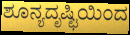
ಶೂನ್ಯದೃಷ್ಟಿಯಿಂದ